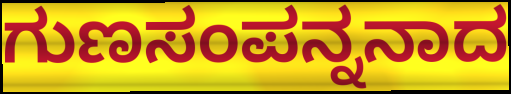
ಗುಣಸಂಪನ್ನನಾದ